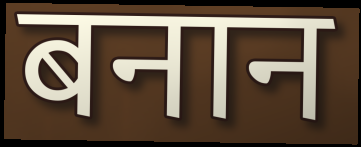
बनान